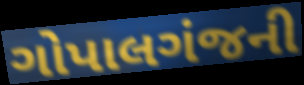
ગોપાલગંજની